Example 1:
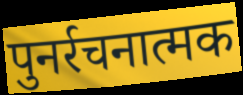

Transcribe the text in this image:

पुनर्रचनात्मक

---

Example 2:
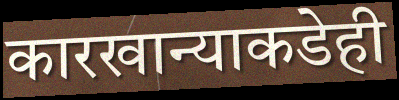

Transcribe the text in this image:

कारखान्याकडेही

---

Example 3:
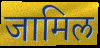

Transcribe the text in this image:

जामिल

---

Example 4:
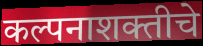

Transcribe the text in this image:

कल्पनाशक्तीचे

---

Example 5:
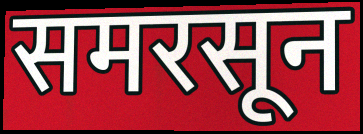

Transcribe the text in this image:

समरसून